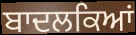
ਬਾਦਲਕਿਆਂ